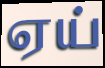
ஏய்